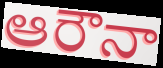
ఆరౌనా